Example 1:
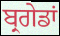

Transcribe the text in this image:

ਬ੍ਰਗੇਡਾਂ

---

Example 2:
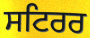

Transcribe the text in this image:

ਸਟਿਰਰ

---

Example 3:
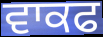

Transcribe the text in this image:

ਵਾਕਫ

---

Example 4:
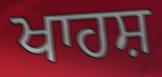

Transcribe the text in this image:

ਖਾਹਸ਼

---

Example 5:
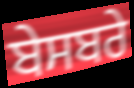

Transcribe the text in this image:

ਬੇਸਬਰੇ